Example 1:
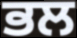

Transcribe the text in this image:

ਭਲ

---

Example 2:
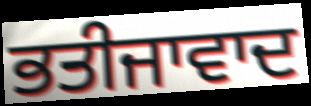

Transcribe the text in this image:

ਭਤੀਜਾਵਾਦ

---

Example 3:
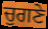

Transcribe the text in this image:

ਚੁਗਣੇ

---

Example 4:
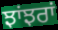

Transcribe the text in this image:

ਝਾਂਝਰਾਂ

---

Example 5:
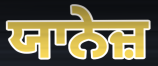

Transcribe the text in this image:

ਯਾਨੇਜ਼